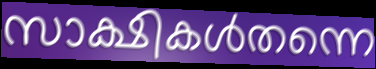
സാക്ഷികൾതന്നെ